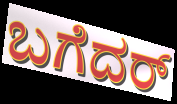
ಬಗೆದರ್